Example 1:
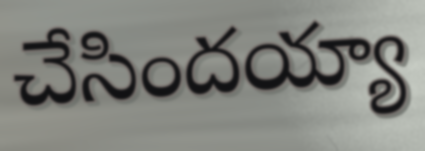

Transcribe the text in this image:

చేసిందయ్యా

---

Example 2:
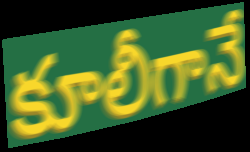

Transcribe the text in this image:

కూలీగానే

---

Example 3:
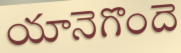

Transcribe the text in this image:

యానెగొందె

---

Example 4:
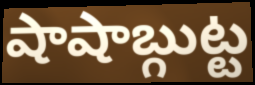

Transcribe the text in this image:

షాషాబ్గుట్ట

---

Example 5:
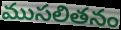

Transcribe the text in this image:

ముసలితనం